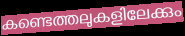
കണ്ടെത്തലുകളിലേക്കും